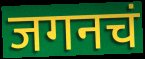
जगनचं